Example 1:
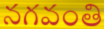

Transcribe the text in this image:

నగవంతి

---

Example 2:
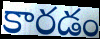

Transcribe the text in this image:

కారడం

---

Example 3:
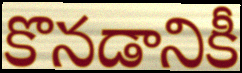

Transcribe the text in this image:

కొనడానికీ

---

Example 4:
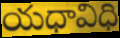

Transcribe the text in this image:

యధావిధి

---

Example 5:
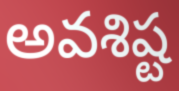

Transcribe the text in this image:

అవశిష్ట